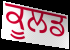
ਕੂਲਡ